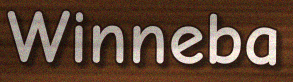
Winneba